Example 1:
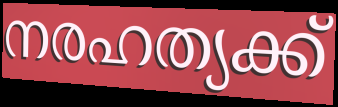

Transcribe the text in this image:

നരഹത്യക്ക്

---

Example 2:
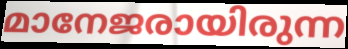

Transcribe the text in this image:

മാനേജരായിരുന്ന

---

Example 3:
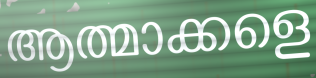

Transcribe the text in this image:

ആത്മാക്കളെ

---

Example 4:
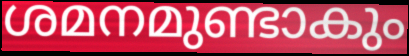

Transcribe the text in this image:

ശമനമുണ്ടാകും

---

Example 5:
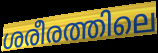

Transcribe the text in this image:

ശരീരത്തിലെ